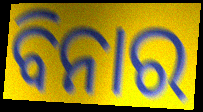
ବିନାର